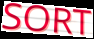
SORT